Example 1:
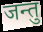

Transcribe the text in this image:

जन्तु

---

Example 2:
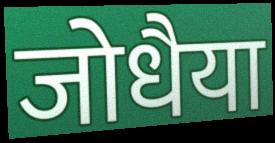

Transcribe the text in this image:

जोधैया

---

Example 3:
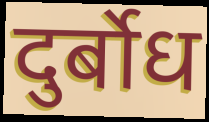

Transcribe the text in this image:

दुर्बोध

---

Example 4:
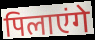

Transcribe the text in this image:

पिलाएंगे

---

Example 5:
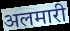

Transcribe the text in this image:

अलमारी